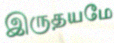
இருதயமே